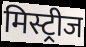
मिस्ट्रीज